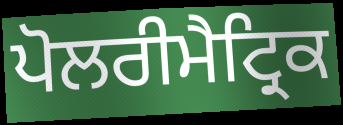
ਪੋਲਰੀਮੈਟ੍ਰਿਕ